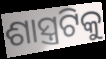
ଶାସ୍ତ୍ରଟିକୁ